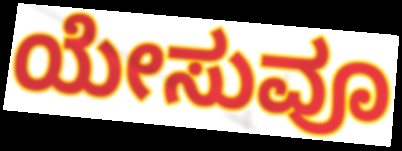
ಯೇಸುವೂ